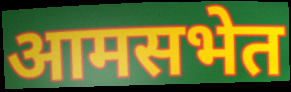
आमसभेत